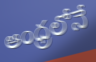
ఆంధ్రలోనే